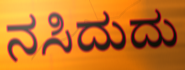
ನಸಿದುದು